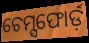
ଚେମ୍ସଫୋର୍ଡ଼